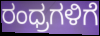
ರಂಧ್ರಗಳಿಗೆ